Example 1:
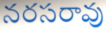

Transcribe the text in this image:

నరసరావు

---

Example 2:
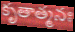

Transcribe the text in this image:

కృతాత్మనః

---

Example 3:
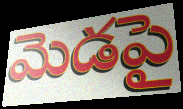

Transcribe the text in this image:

మెడపై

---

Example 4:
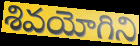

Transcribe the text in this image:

శివయోగిని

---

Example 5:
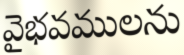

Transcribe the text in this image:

వైభవములను